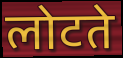
लोटते